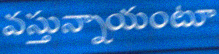
వస్తున్నాయంటూ